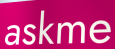
askme